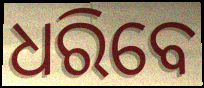
ଧରିବେ